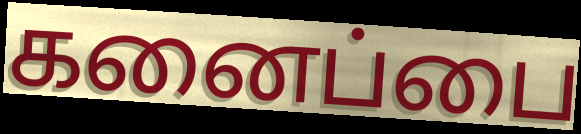
கனைப்பை